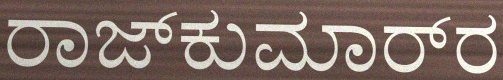
ರಾಜ್‌ಕುಮಾರ್‌ರ